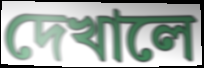
দেখালে